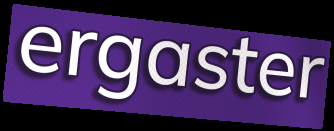
ergaster